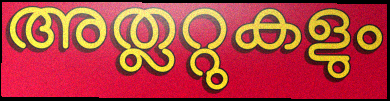
അത്ലറ്റുകളും